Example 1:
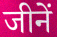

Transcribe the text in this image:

जीनें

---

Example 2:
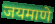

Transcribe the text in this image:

जयमाणे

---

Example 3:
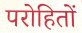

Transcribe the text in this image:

परोहितों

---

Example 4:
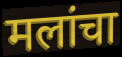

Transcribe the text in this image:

मलांचा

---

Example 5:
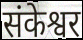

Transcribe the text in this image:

संकेश्वर